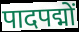
पादपद्मों